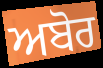
ਅਬੋਰ